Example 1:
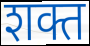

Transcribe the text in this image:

शक्त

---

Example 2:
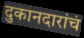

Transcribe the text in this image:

दुकानदारांचं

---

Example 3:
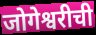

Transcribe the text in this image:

जोगेश्वरीची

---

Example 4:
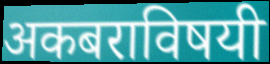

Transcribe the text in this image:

अकबराविषयी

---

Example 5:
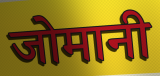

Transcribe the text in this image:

जोमानी